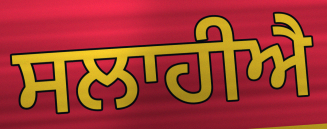
ਸਲਾਹੀਐ